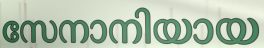
സേനാനിയായ